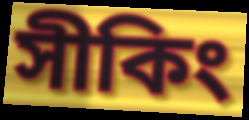
সীকিং